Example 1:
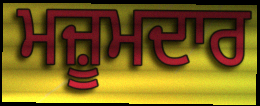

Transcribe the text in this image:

ਮਜ਼ੂਮਦਾਰ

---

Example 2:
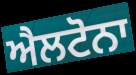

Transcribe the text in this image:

ਐਲਟੋਨਾ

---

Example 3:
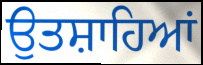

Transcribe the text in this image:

ਉਤਸ਼ਾਹਿਆਂ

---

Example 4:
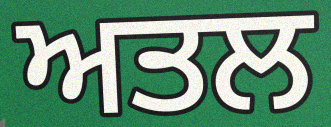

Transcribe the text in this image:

ਅਤਲ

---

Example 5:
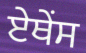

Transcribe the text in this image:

ਏਥੇੰਸ